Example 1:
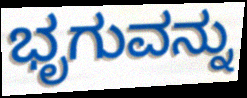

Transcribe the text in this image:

ಭೃಗುವನ್ನು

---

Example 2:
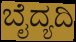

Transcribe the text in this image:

ಬೈದ್ಯದಿ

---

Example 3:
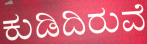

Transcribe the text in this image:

ಕುಡಿದಿರುವೆ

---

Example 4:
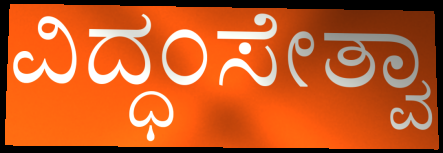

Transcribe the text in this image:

ವಿದ್ಧಂಸೇತ್ವಾ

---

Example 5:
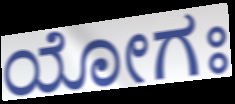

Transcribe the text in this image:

ಯೋಗಃ